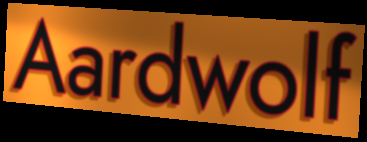
Aardwolf